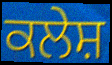
ਕਲੇਸ਼